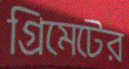
গ্রিমেটের